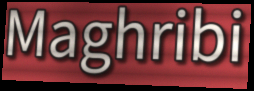
Maghribi